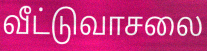
வீட்டுவாசலை